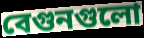
বেগুনগুলো